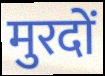
मुरदों